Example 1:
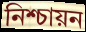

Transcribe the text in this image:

নিশ্চায়ন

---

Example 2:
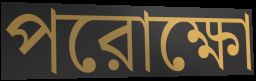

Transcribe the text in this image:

পরোক্ষো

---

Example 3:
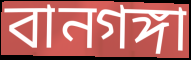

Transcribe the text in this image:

বানগঙ্গা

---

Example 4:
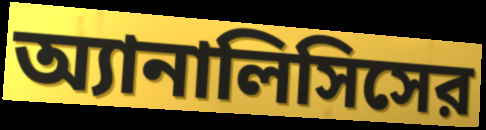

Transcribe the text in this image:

অ্যানালিসিসের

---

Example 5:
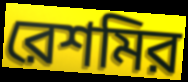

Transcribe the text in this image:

রেশমির